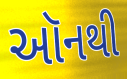
ઑનથી